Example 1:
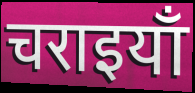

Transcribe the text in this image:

चराइयाँ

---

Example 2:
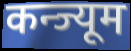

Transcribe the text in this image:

कन्ज्यूम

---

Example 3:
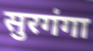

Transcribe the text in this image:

सुरगंगा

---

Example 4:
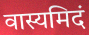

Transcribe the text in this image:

वास्यमिदं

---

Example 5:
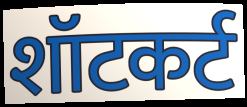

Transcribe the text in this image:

शॉटकर्ट